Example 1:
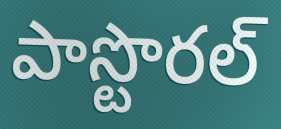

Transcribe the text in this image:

పాస్టొరల్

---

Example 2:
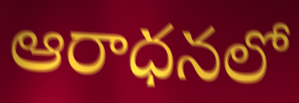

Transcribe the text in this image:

ఆరాధనలో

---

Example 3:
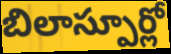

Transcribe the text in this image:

బిలాస్పూర్లో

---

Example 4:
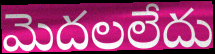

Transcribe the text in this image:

మెదలలేదు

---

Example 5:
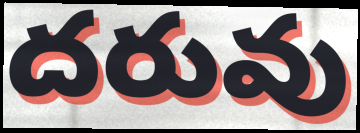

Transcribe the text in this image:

దరువు